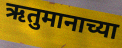
ऋतुमानाच्या